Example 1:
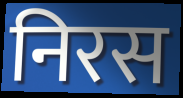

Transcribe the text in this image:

निरस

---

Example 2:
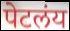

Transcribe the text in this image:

पेटलंय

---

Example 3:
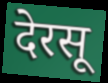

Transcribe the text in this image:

देरसू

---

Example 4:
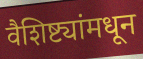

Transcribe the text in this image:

वैशिष्ट्यांमधून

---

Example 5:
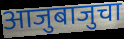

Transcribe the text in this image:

आजुबाजुचा